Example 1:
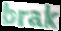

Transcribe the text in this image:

brak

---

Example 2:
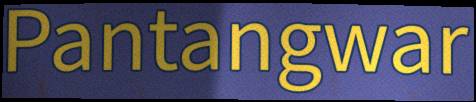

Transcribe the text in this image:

Pantangwar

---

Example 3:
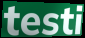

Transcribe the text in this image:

testi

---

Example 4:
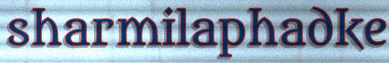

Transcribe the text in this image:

sharmilaphadke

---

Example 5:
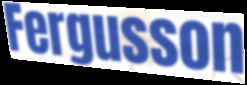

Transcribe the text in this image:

Fergusson